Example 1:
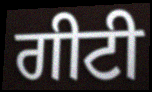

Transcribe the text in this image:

ਗੀਟੀ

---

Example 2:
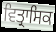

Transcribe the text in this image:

ਵਿਤ੍ਰਾਸਿਕ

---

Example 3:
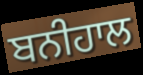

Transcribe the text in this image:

ਬਨੀਹਾਲ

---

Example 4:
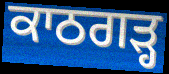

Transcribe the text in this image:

ਕਾਠਗਡ਼੍ਹ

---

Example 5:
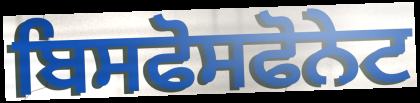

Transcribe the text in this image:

ਬਿਸਫੋਸਫੋਨੇਟ